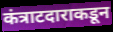
कंत्राटदाराकडून